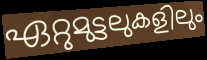
ഏറ്റുമുട്ടലുകളിലും